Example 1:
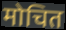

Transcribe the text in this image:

मोचित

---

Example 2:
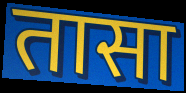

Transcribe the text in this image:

तासा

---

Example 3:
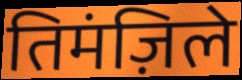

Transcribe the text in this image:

तिमंज़िले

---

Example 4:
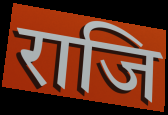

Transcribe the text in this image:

राजि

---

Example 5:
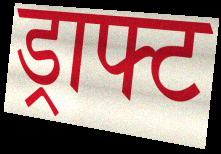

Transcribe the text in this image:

ड्राफ्ट